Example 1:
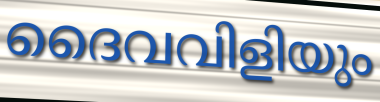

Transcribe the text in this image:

ദൈവവിളിയും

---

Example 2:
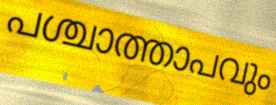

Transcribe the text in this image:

പശ്ചാത്താപവും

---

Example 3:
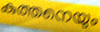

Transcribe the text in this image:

കുത്തനെയും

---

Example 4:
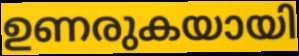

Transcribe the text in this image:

ഉണരുകയായി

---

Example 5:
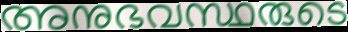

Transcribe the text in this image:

അനുഭവസ്ഥരുടെ